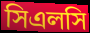
সিএলসি